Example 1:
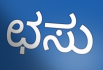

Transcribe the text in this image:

ಛಸು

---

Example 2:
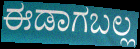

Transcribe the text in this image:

ಈಡಾಗಬಲ್ಲ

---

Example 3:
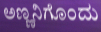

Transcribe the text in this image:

ಅಣ್ಣನಿಗೊಂದು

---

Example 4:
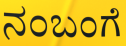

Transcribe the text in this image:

ನಂಬಂಗೆ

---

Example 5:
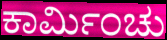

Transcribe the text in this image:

ಕಾರ್ಮಿಂಚು